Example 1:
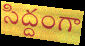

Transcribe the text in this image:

సిద్దంగా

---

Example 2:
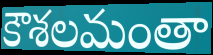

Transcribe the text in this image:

కౌశలమంతా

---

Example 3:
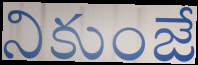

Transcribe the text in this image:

నికుంజే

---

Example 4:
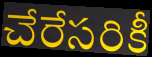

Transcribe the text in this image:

చేరేసరికీ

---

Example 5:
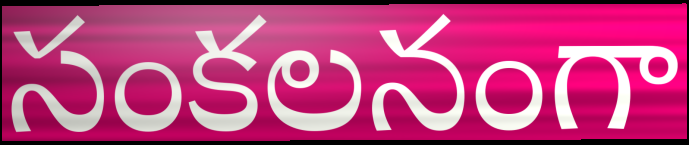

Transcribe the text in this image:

సంకలనంగా